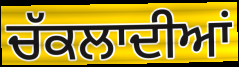
ਚੱਕਲਾਦੀਆਂ